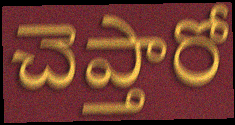
చెప్తారో